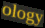
ology